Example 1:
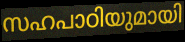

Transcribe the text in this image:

സഹപാഠിയുമായി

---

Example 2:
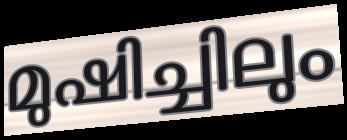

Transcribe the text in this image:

മുഷിച്ചിലും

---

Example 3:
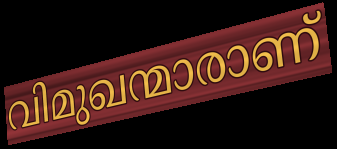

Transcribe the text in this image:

വിമുഖന്മാരാണ്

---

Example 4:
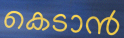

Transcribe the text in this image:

കെടാൻ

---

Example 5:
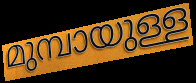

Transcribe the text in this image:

മുമ്പായുള്ള